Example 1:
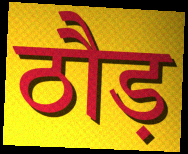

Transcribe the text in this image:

ठौड़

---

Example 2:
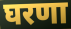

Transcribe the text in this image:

घरणा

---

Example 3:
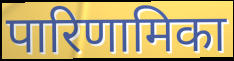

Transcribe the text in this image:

पारिणामिका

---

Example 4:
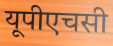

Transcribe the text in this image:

यूपीएचसी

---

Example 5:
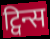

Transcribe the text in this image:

ट्विन्स